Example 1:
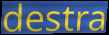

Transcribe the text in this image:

destra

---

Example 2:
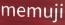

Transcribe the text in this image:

memuji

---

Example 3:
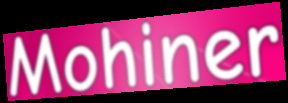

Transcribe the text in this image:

Mohiner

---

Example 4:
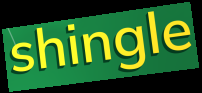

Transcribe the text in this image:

shingle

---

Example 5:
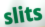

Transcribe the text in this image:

slits